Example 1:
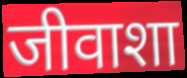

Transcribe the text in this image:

जीवाशा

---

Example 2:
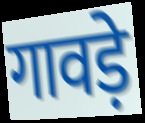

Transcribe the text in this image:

गावड़े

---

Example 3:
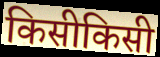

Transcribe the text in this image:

किसीकिसी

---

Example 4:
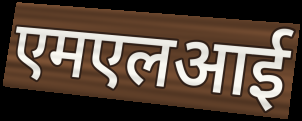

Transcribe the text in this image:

एमएलआई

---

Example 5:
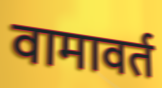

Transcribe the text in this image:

वामावर्त